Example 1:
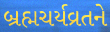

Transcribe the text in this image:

બ્રહ્મચર્યવ્રતને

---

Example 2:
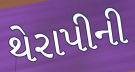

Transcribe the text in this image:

થેરાપીની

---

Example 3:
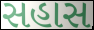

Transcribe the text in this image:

સહાસ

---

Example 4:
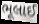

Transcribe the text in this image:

ભૂલાઈ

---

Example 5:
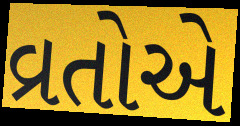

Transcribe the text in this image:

વ્રતોએ